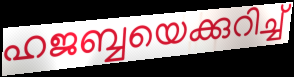
ഹജബ്ബയെക്കുറിച്ച്